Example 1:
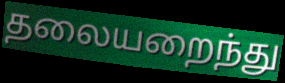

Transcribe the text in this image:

தலையறைந்து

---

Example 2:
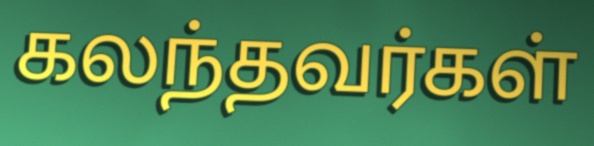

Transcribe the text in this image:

கலந்தவர்கள்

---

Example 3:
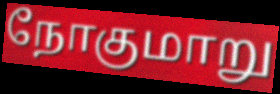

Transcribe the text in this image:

நோகுமாறு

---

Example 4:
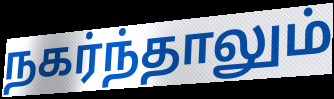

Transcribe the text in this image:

நகர்ந்தாலும்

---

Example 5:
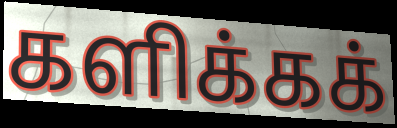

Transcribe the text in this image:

களிக்கக்